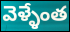
వెళ్ళేంత